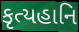
કૃત્યહાનિ